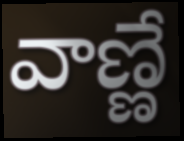
వాణ్ణే